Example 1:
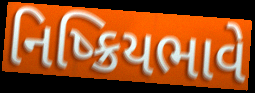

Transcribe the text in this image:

નિષ્ક્રિયભાવે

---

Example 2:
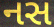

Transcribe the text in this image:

નસ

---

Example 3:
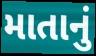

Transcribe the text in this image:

માતાનું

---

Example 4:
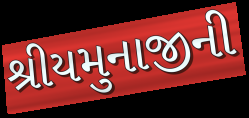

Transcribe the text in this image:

શ્રીયમુનાજીની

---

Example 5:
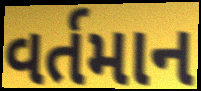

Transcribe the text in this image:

વર્તમાન